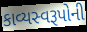
કાવ્યસ્વરૂપોની